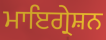
ਮਾਇਗ੍ਰੇਸ਼ਨ